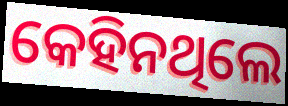
କେହିନଥିଲେ